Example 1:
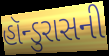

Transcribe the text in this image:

હૉન્ડુરાસની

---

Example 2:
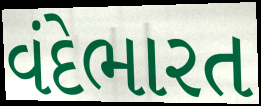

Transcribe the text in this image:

વંદેભારત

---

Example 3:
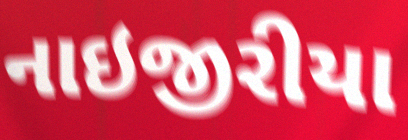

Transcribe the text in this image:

નાઇજીરીયા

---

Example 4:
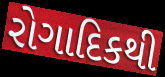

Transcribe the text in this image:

રોગાદિકથી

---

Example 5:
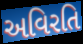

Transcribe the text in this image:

અવિરતિ